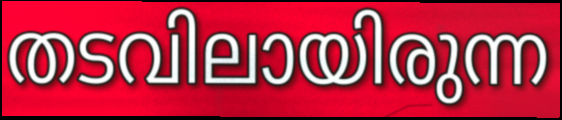
തടവിലായിരുന്ന